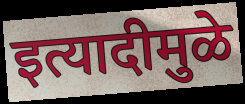
इत्यादीमुळे